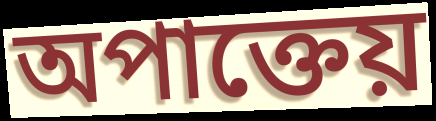
অপাক্তেয়